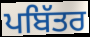
ਪਬਿੱਤਰ